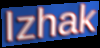
Izhak